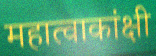
महात्वाकांक्षी